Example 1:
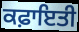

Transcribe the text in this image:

ਕਫ਼ਾਇਤੀ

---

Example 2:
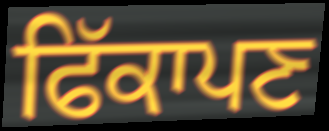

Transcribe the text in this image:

ਫਿੱਕਾਪਣ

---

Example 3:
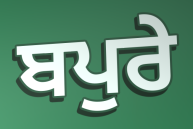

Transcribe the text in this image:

ਬਪੁਰੇ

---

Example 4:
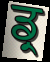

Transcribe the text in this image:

ਡ੍ਰ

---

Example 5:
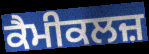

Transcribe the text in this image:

ਕੈਮੀਕਲਜ਼